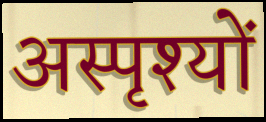
अस्पृश्यों